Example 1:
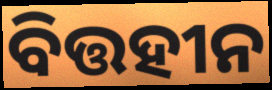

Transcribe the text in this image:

ବିତ୍ତହୀନ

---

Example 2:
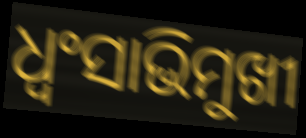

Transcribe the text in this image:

ଧ୍ଵଂସାଭିମୁଖୀ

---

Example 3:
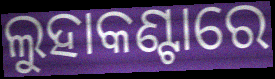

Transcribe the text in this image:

ଲୁହାକଣ୍ଟାରେ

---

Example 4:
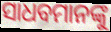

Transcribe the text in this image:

ସାଧବମାନଙ୍କୁ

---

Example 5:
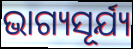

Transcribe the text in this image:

ଭାଗ୍ୟସୂର୍ଯ୍ୟ